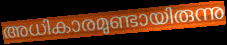
അധികാരമുണ്ടായിരുന്നു